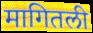
मागितली